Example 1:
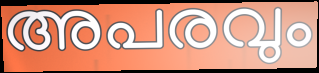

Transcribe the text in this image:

അപരവും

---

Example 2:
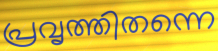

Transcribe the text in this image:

പ്രവൃത്തിതന്നെ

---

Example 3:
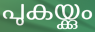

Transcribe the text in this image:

പുകയ്ക്കും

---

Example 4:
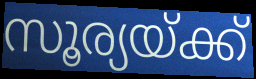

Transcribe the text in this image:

സൂര്യയ്ക്ക്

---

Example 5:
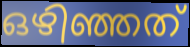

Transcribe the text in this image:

ഒഴിഞ്ഞത്